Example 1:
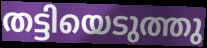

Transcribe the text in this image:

തട്ടിയെടുത്തു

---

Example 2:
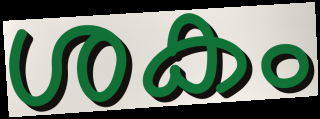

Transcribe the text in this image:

ശകം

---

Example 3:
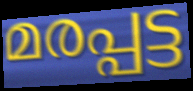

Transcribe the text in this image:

മരപ്പട്ട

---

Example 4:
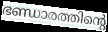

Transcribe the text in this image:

ഭണ്ഡാരത്തിന്റെ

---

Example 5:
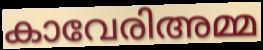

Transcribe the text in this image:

കാവേരിഅമ്മ